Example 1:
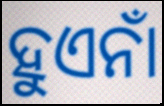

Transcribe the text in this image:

ହୁଏନାଁ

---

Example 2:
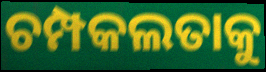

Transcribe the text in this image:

ଚମ୍ପକଲତାକୁ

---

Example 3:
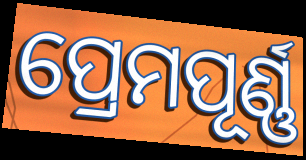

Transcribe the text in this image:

ପ୍ରେମପୂର୍ଣ୍ଣ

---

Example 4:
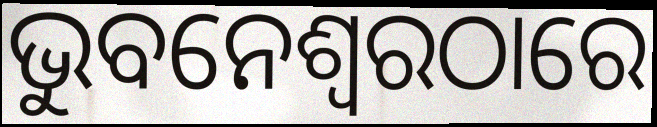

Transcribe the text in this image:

ଭୁବନେଶ୍ଵରଠାରେ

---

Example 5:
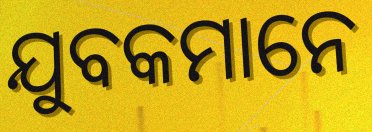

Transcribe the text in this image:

ଯୁବକମାନେ